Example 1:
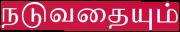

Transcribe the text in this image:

நடுவதையும்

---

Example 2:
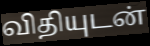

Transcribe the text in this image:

விதியுடன்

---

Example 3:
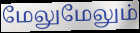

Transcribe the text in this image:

மேலுமேலும்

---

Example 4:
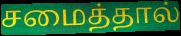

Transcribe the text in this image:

சமைத்தால்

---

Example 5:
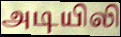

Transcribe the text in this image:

அடியிலி